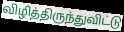
விழித்திருந்துவிட்டு